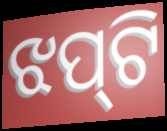
ଝପ୍‌ଟି